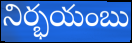
నిర్భయంబు